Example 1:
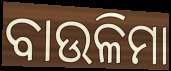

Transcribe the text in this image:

ବାଉଳିମା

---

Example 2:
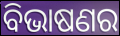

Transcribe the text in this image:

ବିଭାଷଣର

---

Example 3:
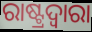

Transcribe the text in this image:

ରାଷ୍ଟ୍ରଦ୍ୱାରା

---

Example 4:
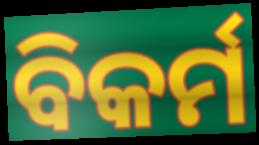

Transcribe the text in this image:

ବିକର୍ମ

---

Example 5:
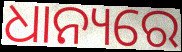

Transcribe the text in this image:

ଧାନ୍ୟରେ